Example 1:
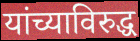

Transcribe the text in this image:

यांच्याविरुद्ध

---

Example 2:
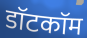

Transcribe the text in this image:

डॉटकॉम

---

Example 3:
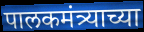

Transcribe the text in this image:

पालकमंत्र्याच्या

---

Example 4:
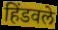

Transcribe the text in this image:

हिंडवले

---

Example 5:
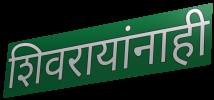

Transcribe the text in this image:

शिवरायांनाही